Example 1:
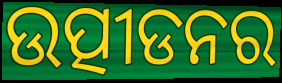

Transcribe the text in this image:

ଉତ୍ପୀଡନର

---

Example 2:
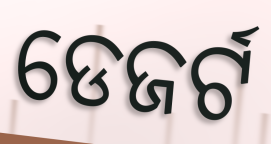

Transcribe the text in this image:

ଡେଜର୍ଟ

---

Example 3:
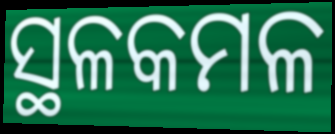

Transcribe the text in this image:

ସ୍ଥଳକମଳ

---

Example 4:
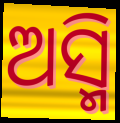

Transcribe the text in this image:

ଅସ୍ମି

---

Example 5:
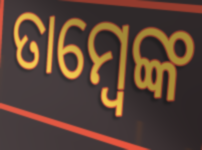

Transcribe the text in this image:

ତାମ୍ବେଙ୍କ